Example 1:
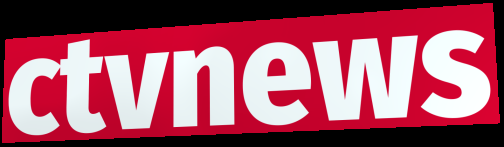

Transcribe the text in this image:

ctvnews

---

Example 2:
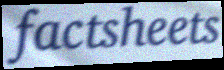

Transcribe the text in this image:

factsheets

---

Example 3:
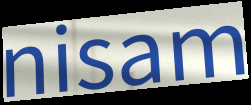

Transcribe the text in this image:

nisam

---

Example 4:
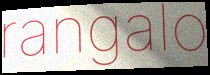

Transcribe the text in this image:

rangalo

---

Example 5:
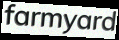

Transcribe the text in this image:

farmyard